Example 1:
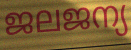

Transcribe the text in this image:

ജലജന്യ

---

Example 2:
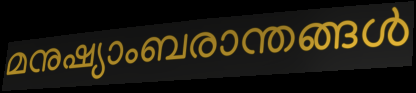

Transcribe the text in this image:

മനുഷ്യാംബരാന്തങ്ങൾ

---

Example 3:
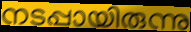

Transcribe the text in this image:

നടപ്പായിരുന്നു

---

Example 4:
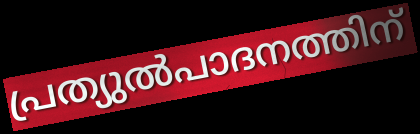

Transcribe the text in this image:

പ്രത്യുൽപാദനത്തിന്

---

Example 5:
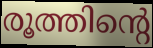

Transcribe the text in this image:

രൂത്തിന്റെ